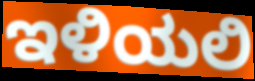
ಇಳಿಯಲಿ